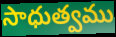
సాధుత్వము